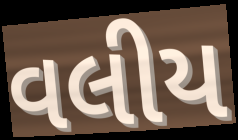
વલીય